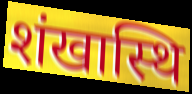
शंखास्थि